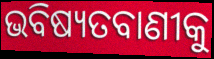
ଭବିଷ୍ୟତବାଣୀକୁ